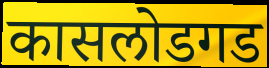
कासलोडगड